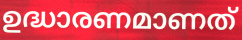
ഉദ്ധാരണമാണത്